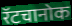
रॅटचानोक